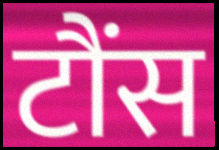
टौंस